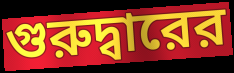
গুরুদ্বারের